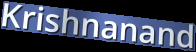
Krishnanand